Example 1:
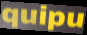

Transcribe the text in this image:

quipu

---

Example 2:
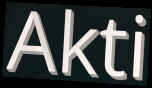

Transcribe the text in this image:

Akti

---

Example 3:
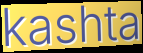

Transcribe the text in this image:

kashta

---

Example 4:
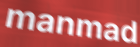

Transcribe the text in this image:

manmad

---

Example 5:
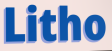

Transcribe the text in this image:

Litho